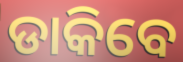
ଡାକିବେ